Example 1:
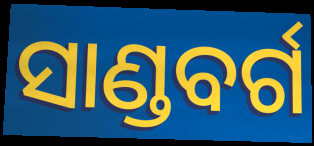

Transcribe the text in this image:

ସାଣ୍ଡବର୍ଗ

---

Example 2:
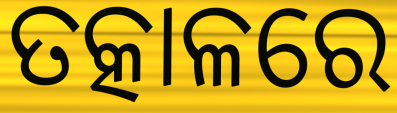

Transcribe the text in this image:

ତତ୍କାଳରେ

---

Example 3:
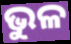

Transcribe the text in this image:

ଭୁଳ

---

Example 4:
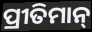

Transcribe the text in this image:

ପ୍ରୀତିମାନ୍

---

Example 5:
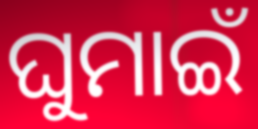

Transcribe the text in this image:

ଘୁମାଇଁ